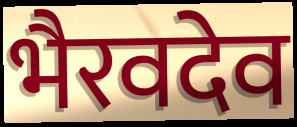
भैरवदेव